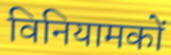
विनियामकों